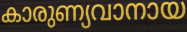
കാരുണ്യവാനായ